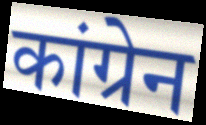
कांग्रेन